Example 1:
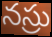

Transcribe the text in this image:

నస్రు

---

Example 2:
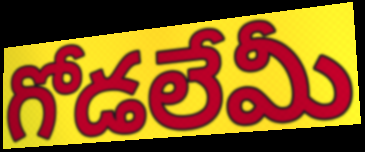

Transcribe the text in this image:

గోడలేమీ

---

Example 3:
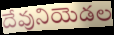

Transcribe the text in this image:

దేవునియెడల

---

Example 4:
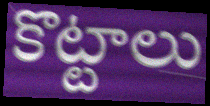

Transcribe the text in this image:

కొట్టాలు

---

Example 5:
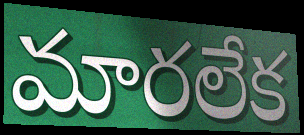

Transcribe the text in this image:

మారలేక